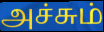
அச்சும்